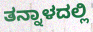
ತನ್ನಾಳದಲ್ಲಿ